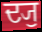
ਦ੍ਯੁ